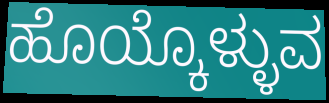
ಹೊಯ್ಕೊಳ್ಳುವ